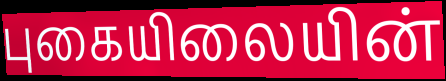
புகையிலையின்